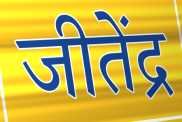
जीतेंद्र